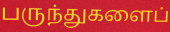
பருந்துகளைப்